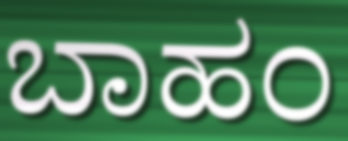
ಬಾಹಂ